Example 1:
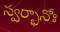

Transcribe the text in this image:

స్వర్భానోః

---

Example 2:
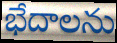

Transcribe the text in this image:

భేదాలను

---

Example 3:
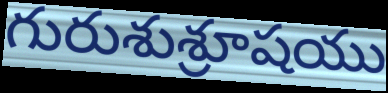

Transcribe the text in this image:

గురుశుశ్రూషయు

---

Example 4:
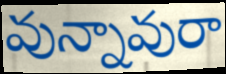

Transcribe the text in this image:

వున్నావురా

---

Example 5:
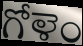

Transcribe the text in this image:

గోళెం